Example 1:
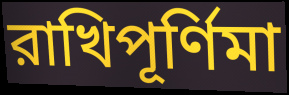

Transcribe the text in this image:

রাখিপূর্ণিমা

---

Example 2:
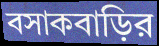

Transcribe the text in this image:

বসাকবাড়ির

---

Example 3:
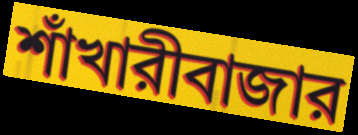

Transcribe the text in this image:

শাঁখারীবাজার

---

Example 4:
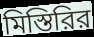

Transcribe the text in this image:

মিস্তিরির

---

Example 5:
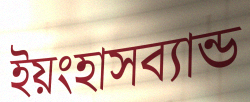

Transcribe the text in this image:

ইয়ংহাসব্যান্ড